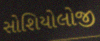
સોશિયોલોજી